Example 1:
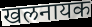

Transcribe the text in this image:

खलनायक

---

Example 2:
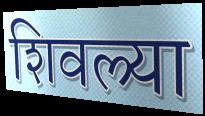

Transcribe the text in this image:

शिवल्या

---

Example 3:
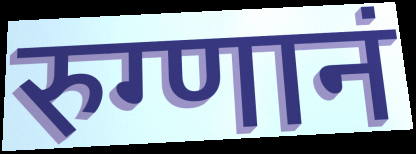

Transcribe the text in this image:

रुग्णानं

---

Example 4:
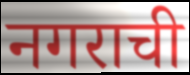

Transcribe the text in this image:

नगराची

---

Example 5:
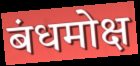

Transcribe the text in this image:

बंधमोक्ष